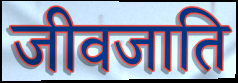
जीवजाति